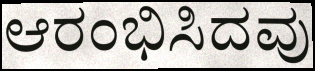
ಆರಂಭಿಸಿದವು